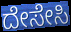
ದೇಸೇಸಿ